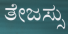
ತೇಜಸ್ಸು